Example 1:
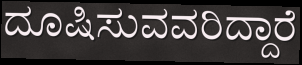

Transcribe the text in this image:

ದೂಷಿಸುವವರಿದ್ದಾರೆ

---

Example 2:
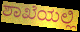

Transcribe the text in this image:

ಶಾಖೆಯಲ್ಲಿ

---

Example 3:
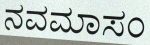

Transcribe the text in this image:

ನವಮಾಸಂ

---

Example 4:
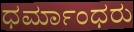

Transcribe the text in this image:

ಧರ್ಮಾಂಧರು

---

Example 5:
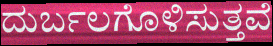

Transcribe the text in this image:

ದುರ್ಬಲಗೊಳಿಸುತ್ತವೆ